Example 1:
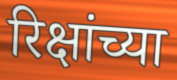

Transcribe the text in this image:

रिक्षांच्या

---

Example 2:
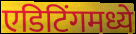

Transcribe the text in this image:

एडिटिंगमध्ये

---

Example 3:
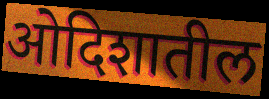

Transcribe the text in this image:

ओदिशातील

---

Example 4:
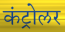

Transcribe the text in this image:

कंट्रोलर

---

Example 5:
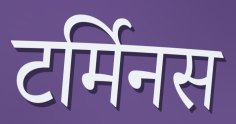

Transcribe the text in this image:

टर्मिनस